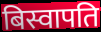
बिस्वापति